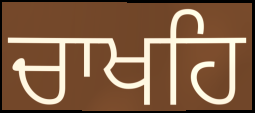
ਚਾਖਹਿ